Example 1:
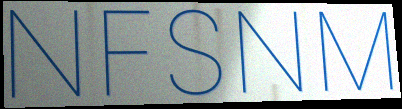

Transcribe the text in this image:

NFSNM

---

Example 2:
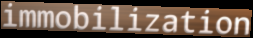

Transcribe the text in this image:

immobilization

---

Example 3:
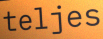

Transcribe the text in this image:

teljes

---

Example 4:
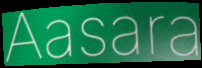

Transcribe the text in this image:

Aasara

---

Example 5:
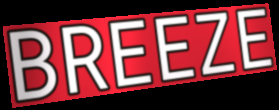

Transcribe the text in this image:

BREEZE